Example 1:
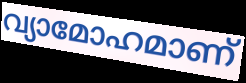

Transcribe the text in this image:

വ്യാമോഹമാണ്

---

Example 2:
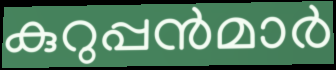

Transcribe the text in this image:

കുറുപ്പൻമാർ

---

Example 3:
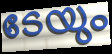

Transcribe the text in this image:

ടേയും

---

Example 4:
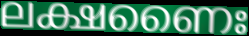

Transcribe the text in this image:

ലക്ഷണൈഃ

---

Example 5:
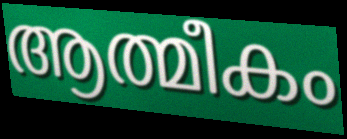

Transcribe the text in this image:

ആത്മീകം